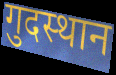
गुदस्थान